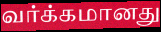
வர்க்கமானது